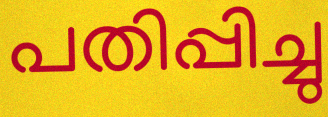
പതിപ്പിച്ചു